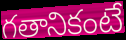
గతానికంటే